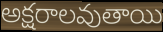
అక్షరాలవుతాయి